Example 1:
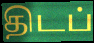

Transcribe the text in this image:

திடப்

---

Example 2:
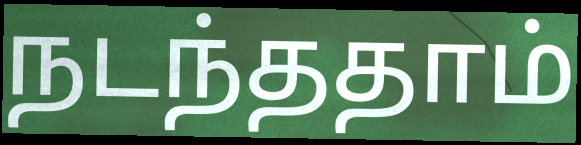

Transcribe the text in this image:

நடந்ததாம்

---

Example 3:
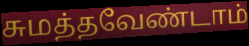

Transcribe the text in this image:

சுமத்தவேண்டாம்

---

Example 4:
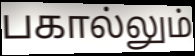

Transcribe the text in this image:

பகால்லும்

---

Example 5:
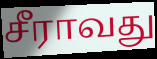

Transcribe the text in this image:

சீராவது